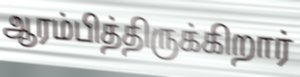
ஆரம்பித்திருக்கிறார்